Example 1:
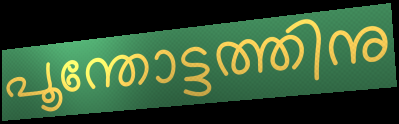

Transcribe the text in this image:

പൂന്തോട്ടത്തിനു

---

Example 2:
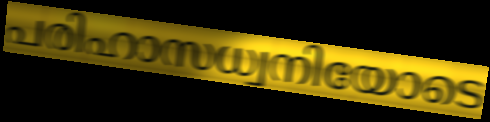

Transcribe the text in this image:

പരിഹാസധ്വനിയോടെ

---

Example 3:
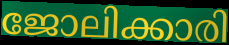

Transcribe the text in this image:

ജോലിക്കാരി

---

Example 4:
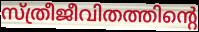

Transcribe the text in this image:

സ്ത്രീജീവിതത്തിന്റെ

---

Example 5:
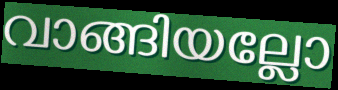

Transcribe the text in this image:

വാങ്ങിയല്ലോ